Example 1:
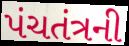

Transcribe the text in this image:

પંચતંત્રની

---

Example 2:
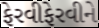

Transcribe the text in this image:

ફેરવીફેરવીને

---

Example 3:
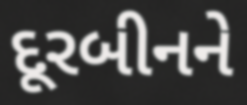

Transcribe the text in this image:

દૂરબીનને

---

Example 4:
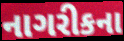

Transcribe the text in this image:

નાગરીકના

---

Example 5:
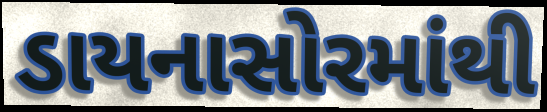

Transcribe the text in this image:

ડાયનાસોરમાંથી